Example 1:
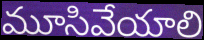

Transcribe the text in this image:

మూసివేయాలి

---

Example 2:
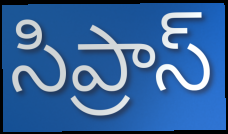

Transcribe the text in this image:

సిప్రాస్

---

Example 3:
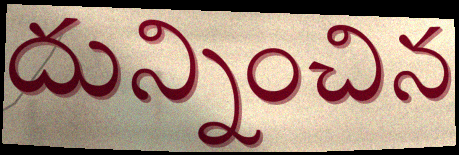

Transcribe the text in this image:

దున్నించిన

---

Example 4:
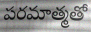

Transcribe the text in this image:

పరమాత్మతో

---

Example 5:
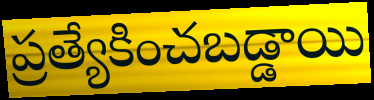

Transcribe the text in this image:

ప్రత్యేకించబడ్డాయి